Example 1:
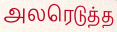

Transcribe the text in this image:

அலரெடுத்த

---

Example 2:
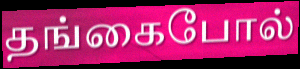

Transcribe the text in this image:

தங்கைபோல்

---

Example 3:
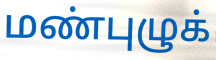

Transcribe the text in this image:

மண்புழுக்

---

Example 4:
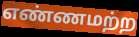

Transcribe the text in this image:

எண்ணமற்ற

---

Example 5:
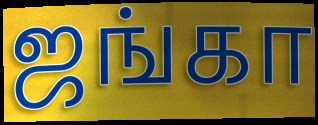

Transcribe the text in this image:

ஜங்கா